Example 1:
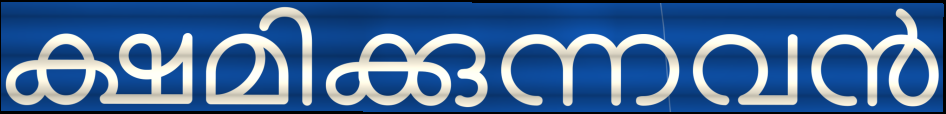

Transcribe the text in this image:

ക്ഷമിക്കുന്നവൻ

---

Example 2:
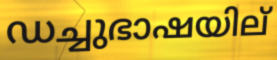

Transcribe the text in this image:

ഡച്ചുഭാഷയില്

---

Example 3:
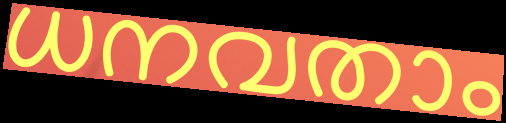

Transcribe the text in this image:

ധനവതാം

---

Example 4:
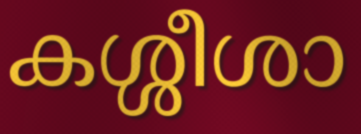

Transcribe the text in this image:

കശ്ശീശാ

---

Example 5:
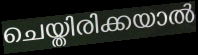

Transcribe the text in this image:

ചെയ്തിരിക്കയാൽ